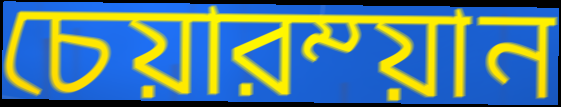
চেয়ারম্য়ান